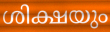
ശിക്ഷയും